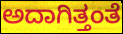
ಅದಾಗಿತ್ತಂತೆ